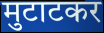
मुटाटकर